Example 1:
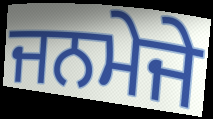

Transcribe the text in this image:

ਜਨਮੇਜੇ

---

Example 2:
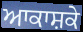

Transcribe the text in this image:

ਆਕਾਸ਼ਕੇ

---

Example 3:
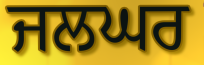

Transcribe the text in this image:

ਜਲਘਰ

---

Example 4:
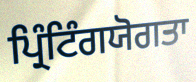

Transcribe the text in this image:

ਪ੍ਰਿੰਟਿੰਗਯੋਗਤਾ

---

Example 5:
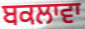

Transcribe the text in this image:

ਬਕਲਾਵਾ